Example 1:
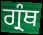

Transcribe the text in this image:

ਗ੍ਰੰਥ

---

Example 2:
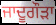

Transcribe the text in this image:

ਜਾਦੂਗੌੜਾ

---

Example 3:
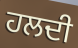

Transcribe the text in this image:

ਹਲਦੀ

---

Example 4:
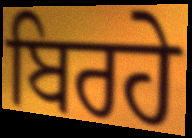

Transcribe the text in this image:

ਬਿਰਹੇ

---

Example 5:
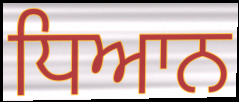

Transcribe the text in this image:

ਧਿਆਨ